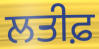
ਲਤੀਫ਼